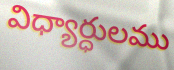
విధ్యార్ధులము